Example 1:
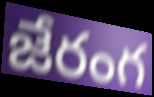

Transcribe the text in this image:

జేరంగ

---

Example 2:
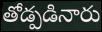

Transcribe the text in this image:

తోడ్పడినారు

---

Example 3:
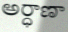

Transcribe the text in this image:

అర్ధాణా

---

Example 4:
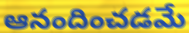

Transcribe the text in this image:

ఆనందించడమే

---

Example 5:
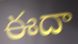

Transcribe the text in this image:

ఈదా